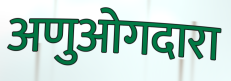
अणुओगदारा